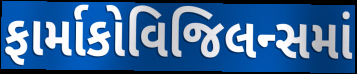
ફાર્માકોવિજિલન્સમાં